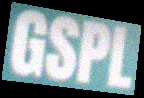
GSPL